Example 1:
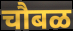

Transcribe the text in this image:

चौबळ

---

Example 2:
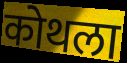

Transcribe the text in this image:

कोथला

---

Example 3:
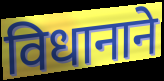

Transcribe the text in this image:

विधानाने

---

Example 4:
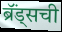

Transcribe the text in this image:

ब्रॅंड्सची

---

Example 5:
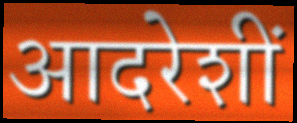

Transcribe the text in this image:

आदरेशीं